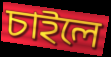
চাইলে